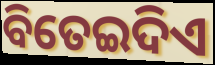
ବିତେଇଦିଏ